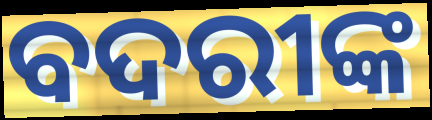
ବଦରୀଙ୍କ